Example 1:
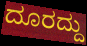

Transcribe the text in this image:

ದೂರದ್ದು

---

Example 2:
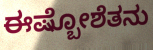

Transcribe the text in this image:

ಈಷ್ಬೋಶೆತನು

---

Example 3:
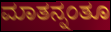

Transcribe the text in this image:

ಮಾತನ್ನಂತೂ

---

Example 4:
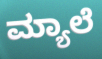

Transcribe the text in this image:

ಮ್ಯಾಲೆ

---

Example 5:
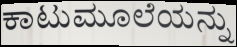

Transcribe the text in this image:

ಕಾಟುಮೂಲೆಯನ್ನು